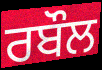
ਰਬੌਲ